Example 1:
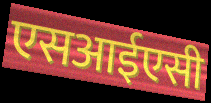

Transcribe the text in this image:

एसआईएसी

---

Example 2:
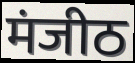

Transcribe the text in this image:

मंजीठ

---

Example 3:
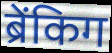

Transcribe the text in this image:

ब्रेंकिग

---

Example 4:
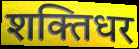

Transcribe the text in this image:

शक्तिधर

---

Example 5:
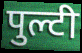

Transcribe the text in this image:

पुल्टी